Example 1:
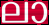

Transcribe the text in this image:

ലാ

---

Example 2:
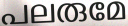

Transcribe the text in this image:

പലരുമേ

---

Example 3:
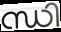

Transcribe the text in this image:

ന്ധി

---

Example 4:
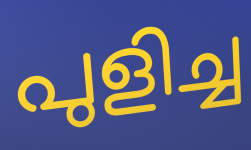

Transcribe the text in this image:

പുളിച്ച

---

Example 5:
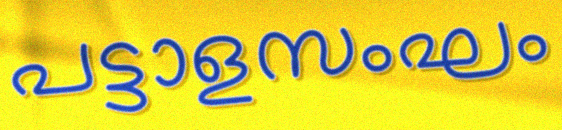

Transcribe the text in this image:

പട്ടാളസംഘം